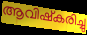
ആവിഷ്കരിച്ചു